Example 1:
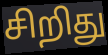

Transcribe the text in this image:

சிறிது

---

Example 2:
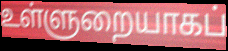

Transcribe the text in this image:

உள்ளுறையாகப்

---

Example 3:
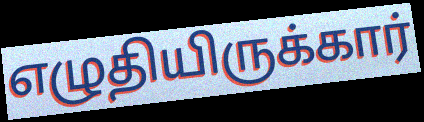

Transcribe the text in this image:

எழுதியிருக்கார்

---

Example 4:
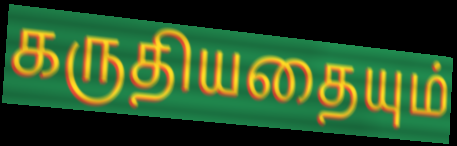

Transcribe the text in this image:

கருதியதையும்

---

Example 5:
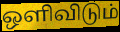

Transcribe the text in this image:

ஒளிவிடும்